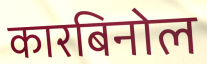
कारबिनोल